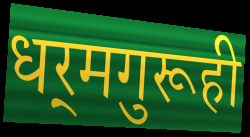
धर्मगुरूही